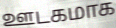
ஊடகமாக